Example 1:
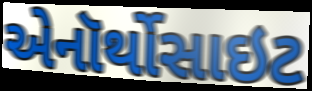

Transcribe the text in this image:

એનૉર્થોસાઇટ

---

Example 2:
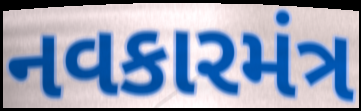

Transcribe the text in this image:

નવકારમંત્ર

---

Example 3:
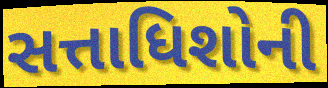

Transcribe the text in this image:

સત્તાધિશોની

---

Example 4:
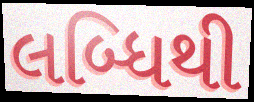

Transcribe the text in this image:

લબ્ધિથી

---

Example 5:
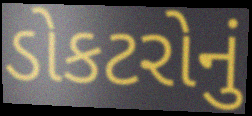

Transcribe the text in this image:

ડોકટરોનું